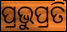
ପ୍ରଭୁପ୍ରତି